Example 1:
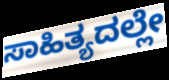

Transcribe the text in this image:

ಸಾಹಿತ್ಯದಲ್ಲೇ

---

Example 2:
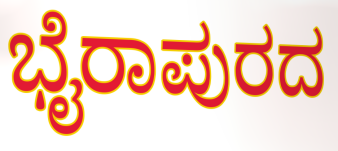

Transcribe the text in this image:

ಭೈರಾಪುರದ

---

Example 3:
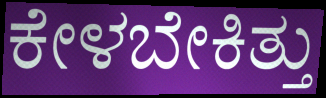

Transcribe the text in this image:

ಕೇಳಬೇಕಿತ್ತು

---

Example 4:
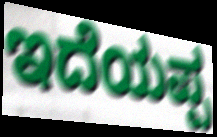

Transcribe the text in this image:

ಇದೆಯಪ್ಪ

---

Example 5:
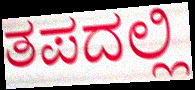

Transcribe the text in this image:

ತಪದಲ್ಲಿ